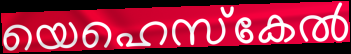
യെഹെസ്കേൽ